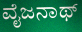
ವೈಜನಾಥ್